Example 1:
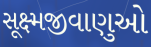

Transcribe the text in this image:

સૂક્ષ્મજીવાણુઓ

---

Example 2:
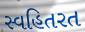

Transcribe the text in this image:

સ્વહિતરત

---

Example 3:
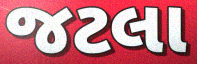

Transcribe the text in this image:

જટલા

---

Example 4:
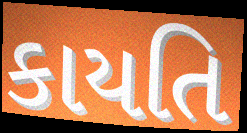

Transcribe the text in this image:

કાયતિ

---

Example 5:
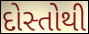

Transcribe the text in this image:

દોસ્તોથી